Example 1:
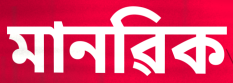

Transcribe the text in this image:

মানৱিক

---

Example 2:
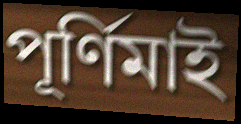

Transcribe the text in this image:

পূৰ্ণিমাই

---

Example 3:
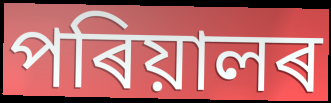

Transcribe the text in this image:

পৰিয়ালৰ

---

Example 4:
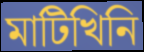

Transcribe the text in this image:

মাটিখিনি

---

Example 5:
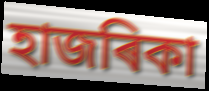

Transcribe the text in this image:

হাজৰিকা